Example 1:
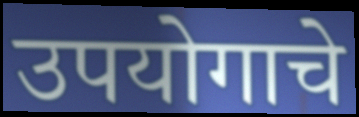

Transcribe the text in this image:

उपयोगाचे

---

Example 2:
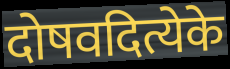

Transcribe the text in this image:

दोषवदित्येके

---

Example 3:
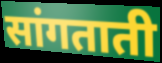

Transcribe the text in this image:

सांगताती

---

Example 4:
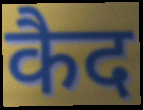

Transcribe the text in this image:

कैद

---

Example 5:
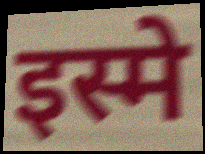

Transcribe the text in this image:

इस्मे